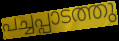
പച്ചപ്പാടത്തു